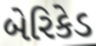
બેરિકેડ